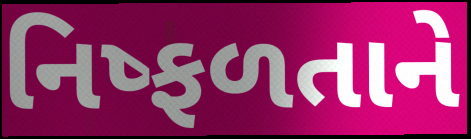
નિષ્ફળતાને